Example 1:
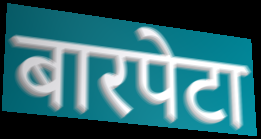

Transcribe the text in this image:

बारपेटा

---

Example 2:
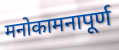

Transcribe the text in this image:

मनोकामनापूर्ण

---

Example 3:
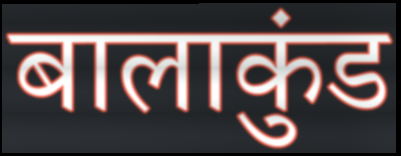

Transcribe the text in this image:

बालाकुंड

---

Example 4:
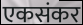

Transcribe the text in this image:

एकसंकर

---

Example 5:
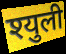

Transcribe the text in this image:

श्युली